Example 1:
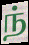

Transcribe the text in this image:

ந்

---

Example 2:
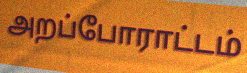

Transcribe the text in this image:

அறப்போராட்டம்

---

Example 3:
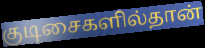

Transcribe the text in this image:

குடிசைகளில்தான்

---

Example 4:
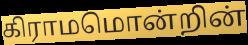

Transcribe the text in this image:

கிராமமொன்றின்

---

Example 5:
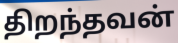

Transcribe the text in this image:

திறந்தவன்